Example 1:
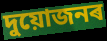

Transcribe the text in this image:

দুয়োজনৰ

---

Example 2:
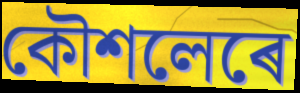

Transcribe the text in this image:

কৌশলেৰে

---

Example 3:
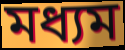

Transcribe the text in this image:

মধ্যম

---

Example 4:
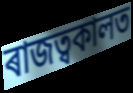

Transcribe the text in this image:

ৰাজত্বকালত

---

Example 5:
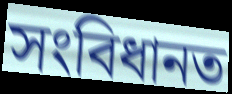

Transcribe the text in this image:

সংবিধানত